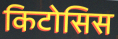
किटोसिस